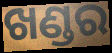
ଖଣ୍ଡର